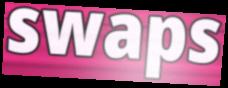
swaps